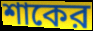
শাকের